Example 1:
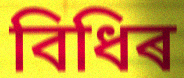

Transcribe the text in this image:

বিধিৰ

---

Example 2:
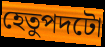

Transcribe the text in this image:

হেতুপদটো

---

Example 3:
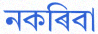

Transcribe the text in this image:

নকৰিবা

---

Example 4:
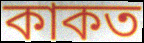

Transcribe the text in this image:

কাকত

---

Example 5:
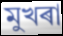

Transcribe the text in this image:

মুখৰা